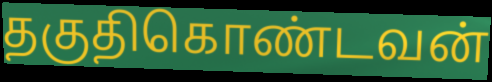
தகுதிகொண்டவன்